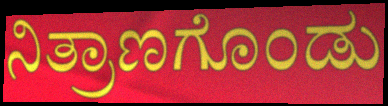
ನಿತ್ರಾಣಗೊಂಡು